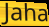
Jaha